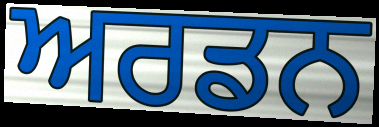
ਅਰਡਨ